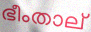
ഭീംതാല്